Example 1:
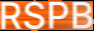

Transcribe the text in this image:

RSPB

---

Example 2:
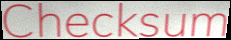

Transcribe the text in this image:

Checksum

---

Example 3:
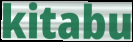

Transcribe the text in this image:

kitabu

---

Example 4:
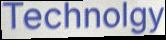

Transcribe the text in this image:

Technolgy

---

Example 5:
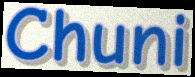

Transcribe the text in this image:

Chuni